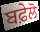
ਬਫ਼ੇਲੋ